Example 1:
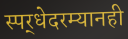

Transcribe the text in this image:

स्पर्धेदरम्यानही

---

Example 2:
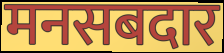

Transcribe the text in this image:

मनसबदार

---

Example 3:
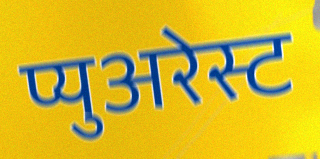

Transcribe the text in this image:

प्युअरेस्ट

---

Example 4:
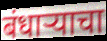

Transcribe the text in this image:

बंधार्‍याचा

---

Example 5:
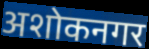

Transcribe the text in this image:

अशोकनगर